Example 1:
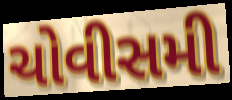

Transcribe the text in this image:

ચોવીસમી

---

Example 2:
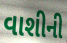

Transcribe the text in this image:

વાશીની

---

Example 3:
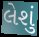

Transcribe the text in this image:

લેશું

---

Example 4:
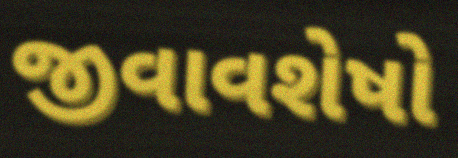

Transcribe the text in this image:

જીવાવશેષો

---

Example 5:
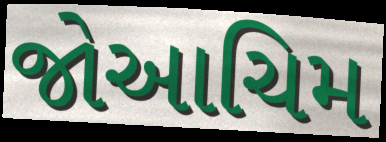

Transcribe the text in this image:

જોઆચિમ